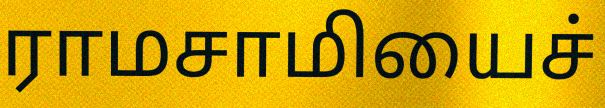
ராமசாமியைச்